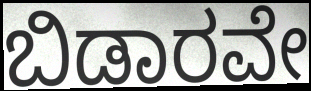
ಬಿಡಾರವೇ